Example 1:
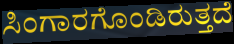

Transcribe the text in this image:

ಸಿಂಗಾರಗೊಂಡಿರುತ್ತದೆ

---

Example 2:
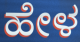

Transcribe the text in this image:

ಹೇಳ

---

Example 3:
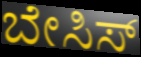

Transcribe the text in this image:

ಬೇಸಿಸ್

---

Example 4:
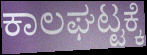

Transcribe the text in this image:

ಕಾಲಘಟ್ಟಕ್ಕೆ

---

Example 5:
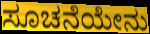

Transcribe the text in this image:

ಸೂಚನೆಯೇನು